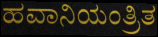
ಹವಾನಿಯಂತ್ರಿತ